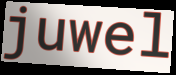
juwel